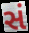
સં